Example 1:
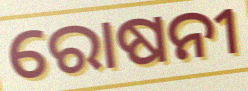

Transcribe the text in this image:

ରୋଷନୀ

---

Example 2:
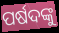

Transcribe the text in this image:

ପର୍ଷଦଙ୍କୁ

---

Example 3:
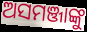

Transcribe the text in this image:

ଅସମଞ୍ଜାଙ୍କୁ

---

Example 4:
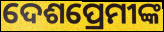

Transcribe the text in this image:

ଦେଶପ୍ରେମୀଙ୍କ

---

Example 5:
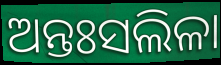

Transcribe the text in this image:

ଅନ୍ତଃସଲିଳା